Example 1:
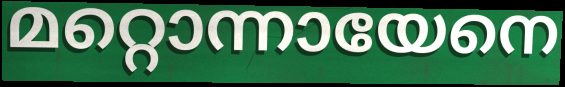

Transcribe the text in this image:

മറ്റൊന്നായേനെ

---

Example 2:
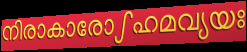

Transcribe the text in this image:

നിരാകാരോഽഹമവ്യയഃ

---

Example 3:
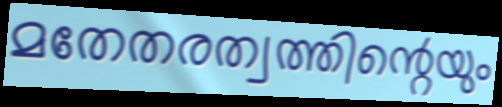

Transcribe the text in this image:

മതേതരത്വത്തിന്റെയും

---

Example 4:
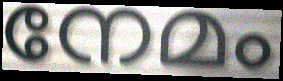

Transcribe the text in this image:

നേമം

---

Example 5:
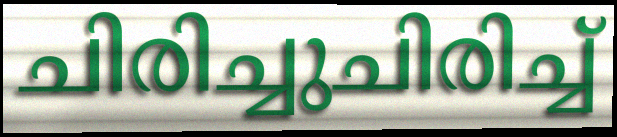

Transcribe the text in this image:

ചിരിച്ചുചിരിച്ച്